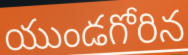
యుండగోరిన